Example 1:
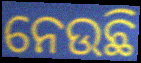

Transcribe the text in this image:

ନେଉଛି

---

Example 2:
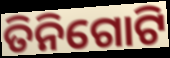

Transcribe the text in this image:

ତିନିଗୋଟି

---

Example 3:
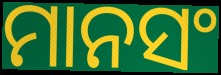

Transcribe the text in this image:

ମାନସଂ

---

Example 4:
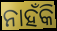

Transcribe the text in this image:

ନାହଁକି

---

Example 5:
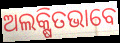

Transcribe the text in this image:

ଅଲକ୍ଷିତଭାବେ